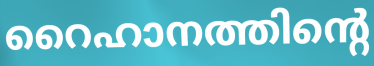
റൈഹാനത്തിന്റെ